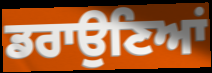
ਡਰਾਉਣਿਆਂ